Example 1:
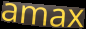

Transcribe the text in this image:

amax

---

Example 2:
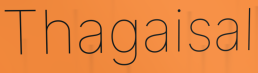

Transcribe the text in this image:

Thagaisal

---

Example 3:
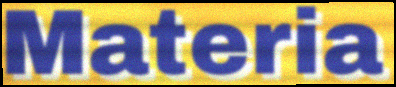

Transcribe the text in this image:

Materia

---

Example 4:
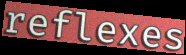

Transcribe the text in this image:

reflexes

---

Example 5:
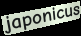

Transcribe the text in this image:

japonicus